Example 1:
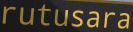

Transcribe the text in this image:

rutusara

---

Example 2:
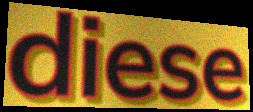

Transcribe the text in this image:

diese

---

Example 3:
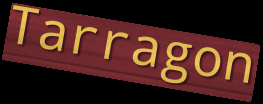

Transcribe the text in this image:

Tarragon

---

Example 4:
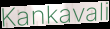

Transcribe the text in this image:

Kankavali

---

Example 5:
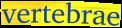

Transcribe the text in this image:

vertebrae